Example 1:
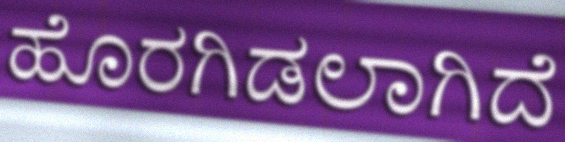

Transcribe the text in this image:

ಹೊರಗಿಡಲಾಗಿದೆ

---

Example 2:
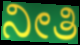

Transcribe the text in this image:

ನೀತಿ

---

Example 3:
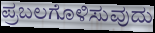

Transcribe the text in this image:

ಪ್ರಬಲಗೊಳಿಸುವುದು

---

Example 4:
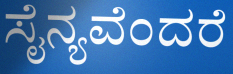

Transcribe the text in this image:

ಸೈನ್ಯವೆಂದರೆ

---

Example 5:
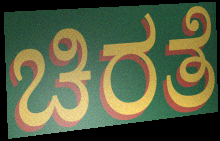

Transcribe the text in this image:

ಚಿರತೆ